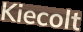
Kiecolt